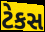
ટેકસ